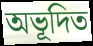
অভূদিত